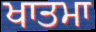
ਖਾਤਮਾ